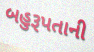
બહુરૂપતાની